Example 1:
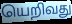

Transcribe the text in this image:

யெறிவது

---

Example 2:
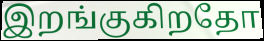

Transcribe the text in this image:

இறங்குகிறதோ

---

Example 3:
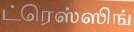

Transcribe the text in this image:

ட்ரெஸ்ஸிங்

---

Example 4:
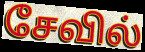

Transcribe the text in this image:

சேவில்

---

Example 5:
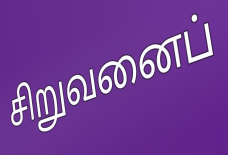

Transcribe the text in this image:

சிறுவனைப்